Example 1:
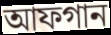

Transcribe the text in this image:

আফগান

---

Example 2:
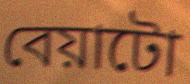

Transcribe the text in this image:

বেয়াটো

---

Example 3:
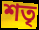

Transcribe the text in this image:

শতৃ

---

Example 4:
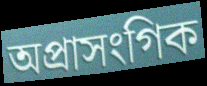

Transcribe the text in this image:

অপ্ৰাসংগিক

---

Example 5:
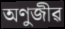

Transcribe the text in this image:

অণুজীৱ